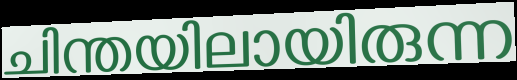
ചിന്തയിലായിരുന്ന